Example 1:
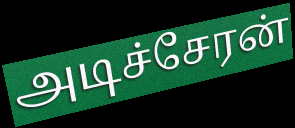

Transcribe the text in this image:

அடிச்சேரன்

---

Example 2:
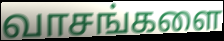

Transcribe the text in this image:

வாசங்களை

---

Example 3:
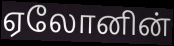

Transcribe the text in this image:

ஏலோனின்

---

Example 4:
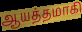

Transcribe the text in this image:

ஆயத்தமாகி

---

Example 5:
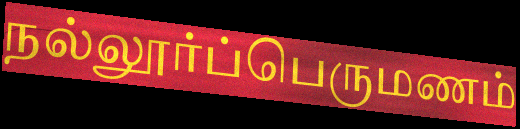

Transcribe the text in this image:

நல்லூர்ப்பெருமணம்